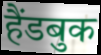
हैंडबुक